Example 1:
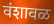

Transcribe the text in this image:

वंशावळ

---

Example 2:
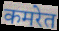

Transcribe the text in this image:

कमरेत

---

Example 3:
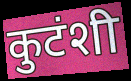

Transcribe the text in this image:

कुटंशी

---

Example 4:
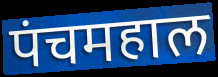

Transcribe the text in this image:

पंचमहाल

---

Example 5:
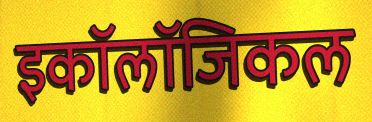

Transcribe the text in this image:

इकॉलॉजिकल